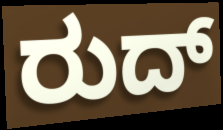
ರುದ್